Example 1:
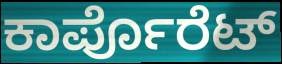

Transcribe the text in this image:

ಕಾರ್ಪೊರೆಟ್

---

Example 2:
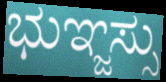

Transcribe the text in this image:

ಭುಞ್ಜಸ್ಸು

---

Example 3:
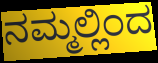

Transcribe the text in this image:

ನಮ್ಮಲ್ಲಿಂದ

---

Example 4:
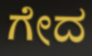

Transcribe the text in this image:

ಗೇದ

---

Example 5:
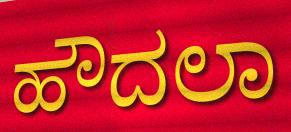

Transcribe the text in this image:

ಹೌದಲಾ